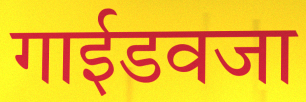
गाईडवजा